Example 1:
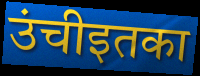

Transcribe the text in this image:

उंचीइतका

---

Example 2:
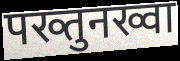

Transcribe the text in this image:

पख्तुनख्वा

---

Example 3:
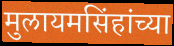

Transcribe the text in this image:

मुलायमसिंहांच्या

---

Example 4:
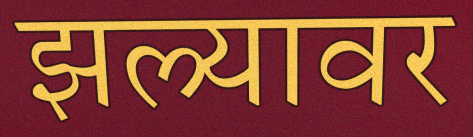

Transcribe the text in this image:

झल्यावर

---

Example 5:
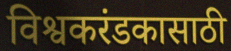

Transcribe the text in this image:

विश्वकरंडकासाठी